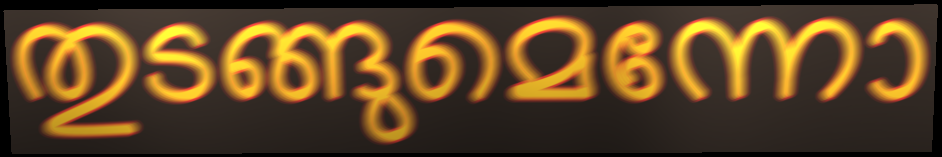
തുടങ്ങുമെന്നോ